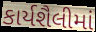
કાર્યશૈલીમાં